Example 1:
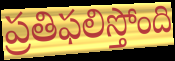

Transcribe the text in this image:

ప్రతిఫలిస్తోంది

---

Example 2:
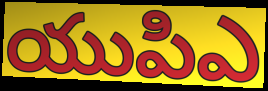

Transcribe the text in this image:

యుపిఎ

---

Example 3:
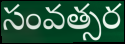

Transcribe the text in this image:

సంవత్సర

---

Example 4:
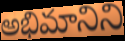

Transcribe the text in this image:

అభిమానిని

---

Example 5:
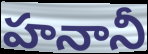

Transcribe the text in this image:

హనానీ